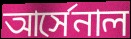
আর্সেনাল